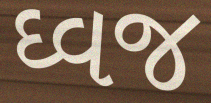
ઘ્વજ